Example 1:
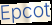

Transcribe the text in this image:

Epcot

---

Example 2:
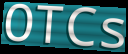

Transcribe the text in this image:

OTCs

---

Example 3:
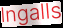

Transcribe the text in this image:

Ingalls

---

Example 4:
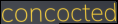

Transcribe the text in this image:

concocted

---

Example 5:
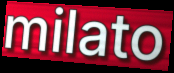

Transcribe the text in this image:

milato